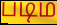
படிம